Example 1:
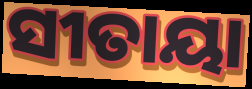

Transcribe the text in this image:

ସୀତାୟା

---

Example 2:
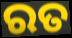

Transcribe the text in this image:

ରତ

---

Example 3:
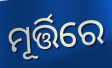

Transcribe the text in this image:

ମୂର୍ତ୍ତିରେ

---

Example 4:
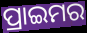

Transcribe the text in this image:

ପ୍ରାଇମର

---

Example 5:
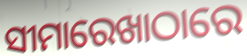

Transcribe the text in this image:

ସୀମାରେଖାଠାରେ